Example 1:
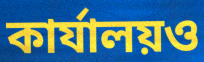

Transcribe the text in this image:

কার্যালয়ও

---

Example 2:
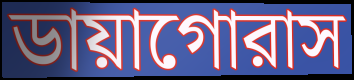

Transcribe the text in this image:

ডায়াগোরাস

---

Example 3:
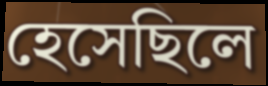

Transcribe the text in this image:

হেসেছিলে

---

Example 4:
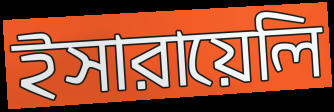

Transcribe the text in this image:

ইসারায়েলি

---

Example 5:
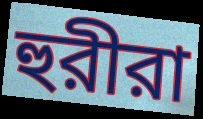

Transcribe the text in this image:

হুরীরা